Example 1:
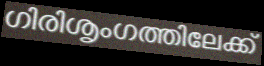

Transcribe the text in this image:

ഗിരിശൃംഗത്തിലേക്ക്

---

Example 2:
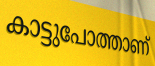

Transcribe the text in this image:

കാട്ടുപോത്താണ്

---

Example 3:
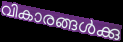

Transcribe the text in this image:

വികാരങ്ങൾക്കു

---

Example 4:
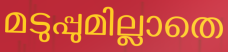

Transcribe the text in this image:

മടുപ്പുമില്ലാതെ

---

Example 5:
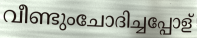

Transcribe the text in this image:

വീണ്ടുംചോദിച്ചപ്പോള്